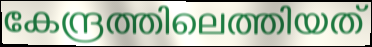
കേന്ദ്രത്തിലെത്തിയത്